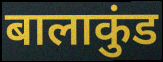
बालाकुंड